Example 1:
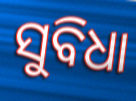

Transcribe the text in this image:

ସୁବିଧା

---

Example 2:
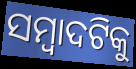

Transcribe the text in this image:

ସମ୍ୱାଦଟିକୁ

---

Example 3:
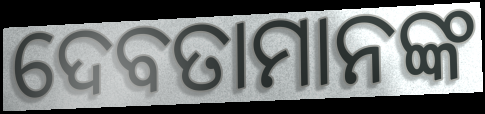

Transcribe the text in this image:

ଦେବତାମାନଙ୍କ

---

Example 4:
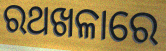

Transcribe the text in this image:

ରଥଖଳାରେ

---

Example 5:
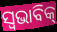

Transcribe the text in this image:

ସ୍ୱଭାବିକ୍